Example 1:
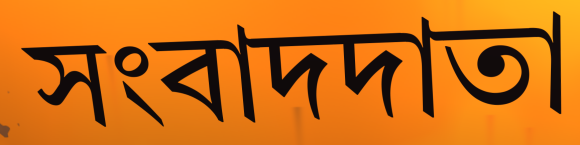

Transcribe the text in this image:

সংবাদদাতা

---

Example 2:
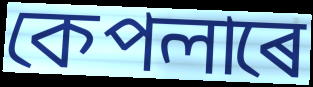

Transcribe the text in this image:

কেপলাৰে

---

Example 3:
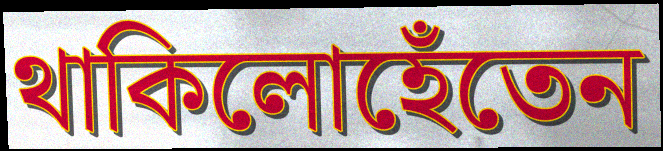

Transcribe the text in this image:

থাকিলোহেঁতেন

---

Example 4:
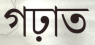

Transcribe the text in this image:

গঢ়াত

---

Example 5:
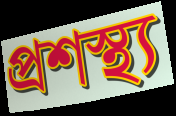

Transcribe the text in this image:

প্ৰশস্থ্য